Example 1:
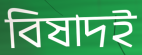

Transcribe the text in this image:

বিষাদই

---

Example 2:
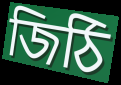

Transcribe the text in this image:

জিঠি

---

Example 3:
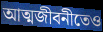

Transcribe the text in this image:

আত্মজীবনীতেও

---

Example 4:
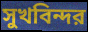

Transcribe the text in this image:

সুখবিন্দর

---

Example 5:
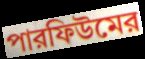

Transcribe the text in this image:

পারফিউমের